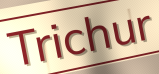
Trichur